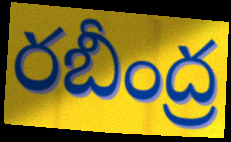
రబీంద్ర